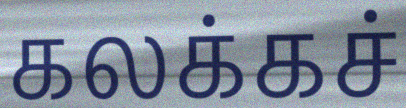
கலக்கச்